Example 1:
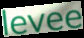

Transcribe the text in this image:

levee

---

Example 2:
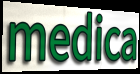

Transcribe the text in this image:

medica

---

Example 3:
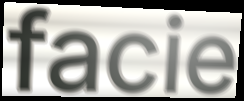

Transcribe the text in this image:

facie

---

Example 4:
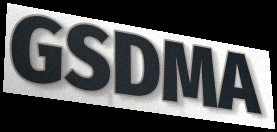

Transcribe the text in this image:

GSDMA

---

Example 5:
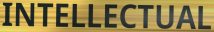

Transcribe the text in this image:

INTELLECTUAL